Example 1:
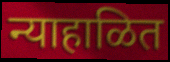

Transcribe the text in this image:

न्याहाळित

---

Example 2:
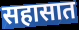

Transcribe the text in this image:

सहासात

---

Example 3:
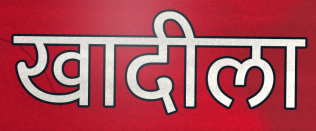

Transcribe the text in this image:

खादीला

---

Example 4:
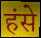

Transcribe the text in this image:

हंसे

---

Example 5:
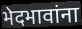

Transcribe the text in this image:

भेदभावांना